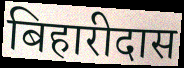
बिहारीदास